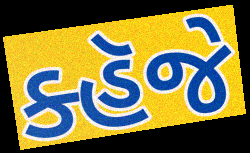
ક્હૅજે